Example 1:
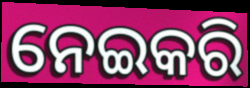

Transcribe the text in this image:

ନେଇକରି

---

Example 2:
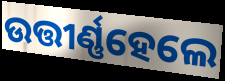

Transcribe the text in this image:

ଉତ୍ତୀର୍ଣ୍ଣହେଲେ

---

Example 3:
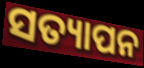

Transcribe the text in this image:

ସତ୍ୟାପନ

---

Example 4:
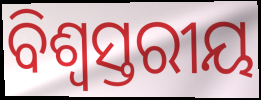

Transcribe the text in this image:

ବିଶ୍ଵସ୍ତରୀୟ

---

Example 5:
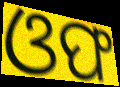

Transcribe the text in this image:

ଓଫ